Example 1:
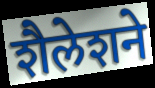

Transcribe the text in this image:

शैलेशने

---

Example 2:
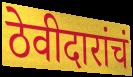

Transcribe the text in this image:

ठेवीदारांचं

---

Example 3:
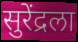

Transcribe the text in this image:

सुरेंद्रला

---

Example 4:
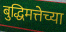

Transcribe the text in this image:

बुद्धिमत्तेच्या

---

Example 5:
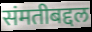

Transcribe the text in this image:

संमतीबद्दल